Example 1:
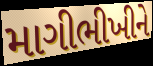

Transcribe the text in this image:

માગીભીખીને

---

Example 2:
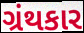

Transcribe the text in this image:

ગ્રંથકાર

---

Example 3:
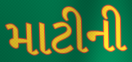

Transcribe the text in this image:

માટીની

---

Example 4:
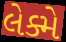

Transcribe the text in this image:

લેક્મે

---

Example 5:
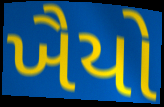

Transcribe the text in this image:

ખૈયો